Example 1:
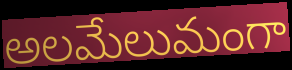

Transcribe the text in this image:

అలమేలుమంగా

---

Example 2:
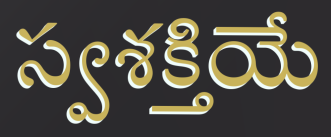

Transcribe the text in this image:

స్వశక్తియే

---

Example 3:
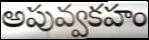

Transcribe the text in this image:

అపువ్వకహం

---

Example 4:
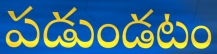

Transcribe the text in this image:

పడుండటం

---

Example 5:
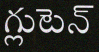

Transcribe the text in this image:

గ్లుటెన్